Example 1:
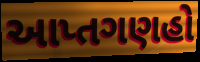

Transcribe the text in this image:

આપ્તગણહો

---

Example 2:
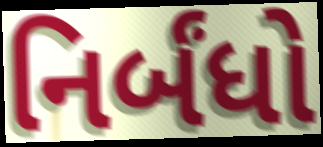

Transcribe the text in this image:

નિર્બંધો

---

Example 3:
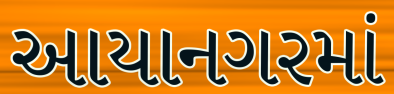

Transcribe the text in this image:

આયાનગરમાં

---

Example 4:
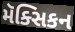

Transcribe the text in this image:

મૅક્સિકન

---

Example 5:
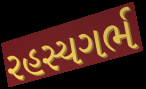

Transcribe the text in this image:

રહસ્યગર્ભ